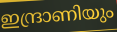
ഇന്ദ്രാണിയും